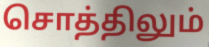
சொத்திலும்